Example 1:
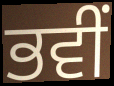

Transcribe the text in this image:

ਭਵੀਂ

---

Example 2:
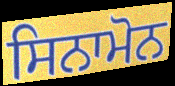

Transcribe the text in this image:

ਸਿਨਾਮੋਨ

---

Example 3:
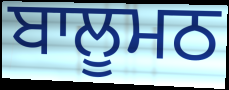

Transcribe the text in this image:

ਬਾਲੂਮਠ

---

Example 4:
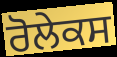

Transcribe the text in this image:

ਰੋਲੇਕਸ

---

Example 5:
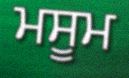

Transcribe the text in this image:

ਮਸੂਮ